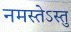
नमस्तेऽस्तु